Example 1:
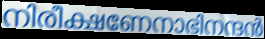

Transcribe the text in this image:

നിരീക്ഷണേനാഭിനന്ദൻ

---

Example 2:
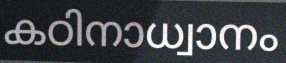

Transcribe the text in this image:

കഠിനാധ്വാനം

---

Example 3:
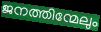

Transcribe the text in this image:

ജനത്തിന്മേലും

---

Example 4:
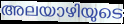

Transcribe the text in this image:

അലയാഴിയുടെ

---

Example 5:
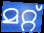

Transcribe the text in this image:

മറ്റ്